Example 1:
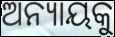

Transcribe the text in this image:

ଅନ୍ୟାୟକୁ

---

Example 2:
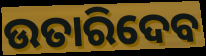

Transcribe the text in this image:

ଉତାରିଦେବ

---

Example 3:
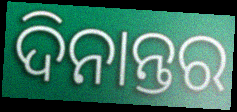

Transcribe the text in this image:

ଦିନାନ୍ତର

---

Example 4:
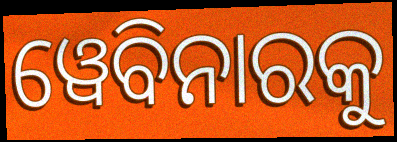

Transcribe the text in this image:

ୱେବିନାରକୁ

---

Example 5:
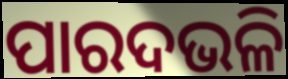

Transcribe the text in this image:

ପାରଦଭଳି